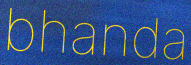
bhanda